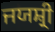
ਜਯਸ਼੍ਰੀ